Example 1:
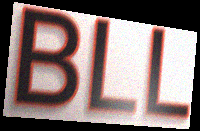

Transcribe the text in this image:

BLL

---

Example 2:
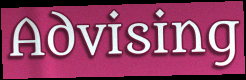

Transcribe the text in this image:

Advising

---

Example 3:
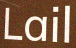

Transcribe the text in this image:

Lail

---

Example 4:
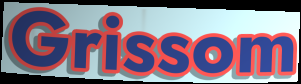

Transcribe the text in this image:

Grissom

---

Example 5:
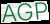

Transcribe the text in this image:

AGP